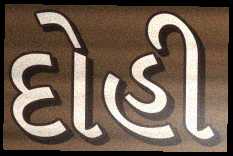
દોહી